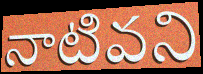
నాటివని